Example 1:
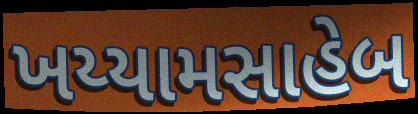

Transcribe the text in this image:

ખય્યામસાહેબ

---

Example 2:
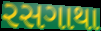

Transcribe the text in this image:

રસગાથા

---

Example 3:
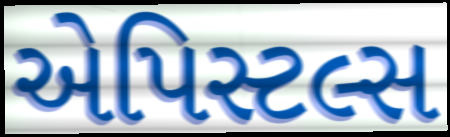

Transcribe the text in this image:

એપિસ્ટલ્સ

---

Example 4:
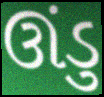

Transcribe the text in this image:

ઊંડુ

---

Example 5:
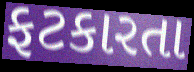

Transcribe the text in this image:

ફટકારતા